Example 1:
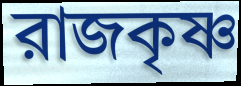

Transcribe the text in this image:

রাজকৃষ্ণ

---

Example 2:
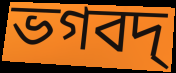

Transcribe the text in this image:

ভগবদ্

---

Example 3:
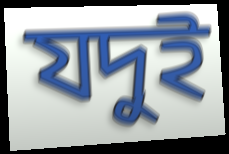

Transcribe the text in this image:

যদুই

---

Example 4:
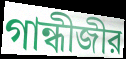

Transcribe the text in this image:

গান্ধীজীর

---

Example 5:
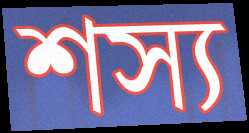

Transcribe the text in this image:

শস্য